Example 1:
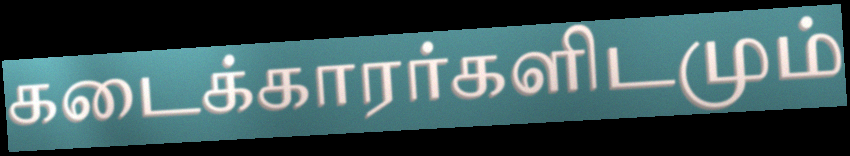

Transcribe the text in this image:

கடைக்காரர்களிடமும்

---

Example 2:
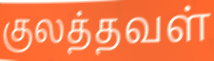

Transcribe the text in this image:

குலத்தவள்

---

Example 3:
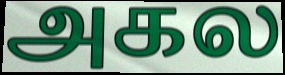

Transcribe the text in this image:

அகல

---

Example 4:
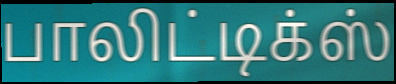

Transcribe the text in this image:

பாலிட்டிக்ஸ்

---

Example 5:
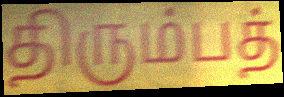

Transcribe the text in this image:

திரும்பத்